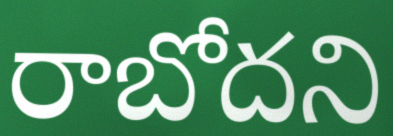
రాబోదని